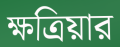
ক্ষত্রিয়ার